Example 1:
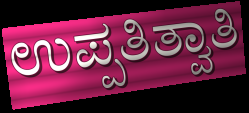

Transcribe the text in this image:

ಉಪ್ಪತಿತ್ವಾತಿ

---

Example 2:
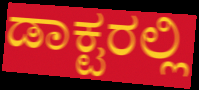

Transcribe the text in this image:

ಡಾಕ್ಟರಲ್ಲಿ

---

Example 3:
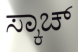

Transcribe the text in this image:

ಸ್ಕಾಚ್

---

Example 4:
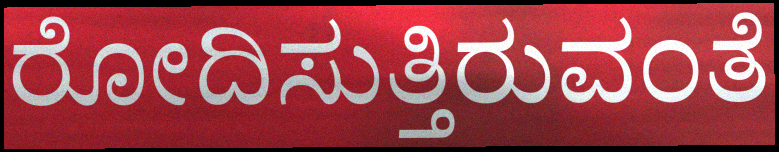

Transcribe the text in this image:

ರೋದಿಸುತ್ತಿರುವಂತೆ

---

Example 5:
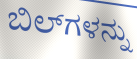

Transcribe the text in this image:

ಬಿಲ್‌ಗಳನ್ನು